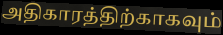
அதிகாரத்திற்காகவும்